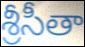
శ్రీసీతా